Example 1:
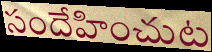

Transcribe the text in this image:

సందేహించుట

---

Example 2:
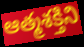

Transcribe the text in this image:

ఆత్మశక్తిని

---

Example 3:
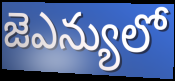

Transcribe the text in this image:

జెఎన్యులో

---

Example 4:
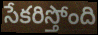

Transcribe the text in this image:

సేకరిస్తోంది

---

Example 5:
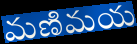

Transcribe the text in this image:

మణిమయ